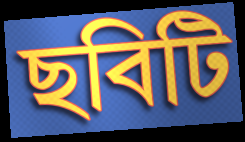
ছবিটি